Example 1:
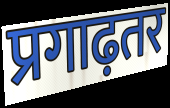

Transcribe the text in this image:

प्रगाढ़तर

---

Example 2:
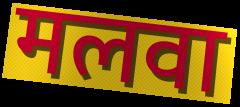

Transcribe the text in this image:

मलवा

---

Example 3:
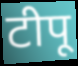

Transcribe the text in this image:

टीपू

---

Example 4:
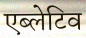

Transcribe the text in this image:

एब्लेटिव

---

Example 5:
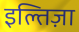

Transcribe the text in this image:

इल्तिज़ा